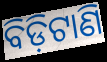
ବିଡ଼ିଟାଣି